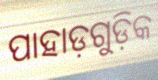
ପାହାଡ଼ଗୁଡ଼ିକ